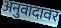
अनुवादावर